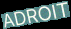
ADROIT